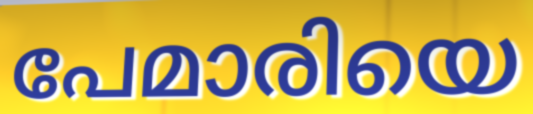
പേമാരിയെ